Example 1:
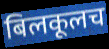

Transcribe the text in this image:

बिलकूलच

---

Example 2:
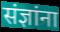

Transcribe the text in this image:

संज्ञांना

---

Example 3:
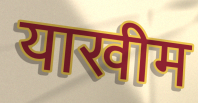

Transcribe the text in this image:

याखीम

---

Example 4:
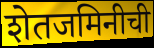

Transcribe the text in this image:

शेतजमिनीची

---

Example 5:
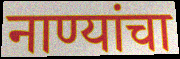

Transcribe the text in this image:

नाण्यांचा